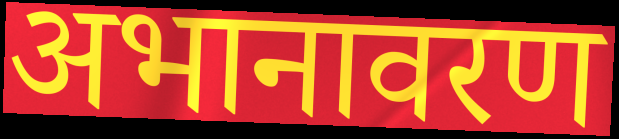
अभानावरण